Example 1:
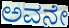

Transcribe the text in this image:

ಅವನೇ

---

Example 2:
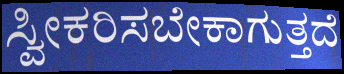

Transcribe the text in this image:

ಸ್ವೀಕರಿಸಬೇಕಾಗುತ್ತದೆ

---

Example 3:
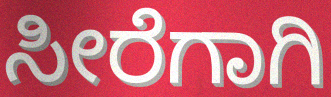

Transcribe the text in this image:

ಸೀರೆಗಾಗಿ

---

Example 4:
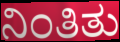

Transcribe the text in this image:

ನಿಂತಿತು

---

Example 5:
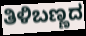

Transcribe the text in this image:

ತಿಳಿಬಣ್ಣದ